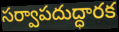
సర్వాపదుద్ధారక